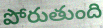
పోరుతుంది